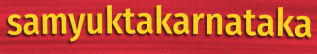
samyuktakarnataka